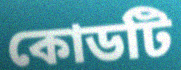
কোডটি